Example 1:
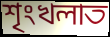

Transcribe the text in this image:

শৃংখলাত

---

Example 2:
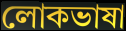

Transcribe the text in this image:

লোকভাষা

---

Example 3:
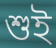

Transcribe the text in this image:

শুই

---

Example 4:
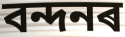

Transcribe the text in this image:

বন্দনৰ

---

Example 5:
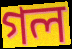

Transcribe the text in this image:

গল